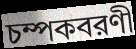
চম্পকবরণী